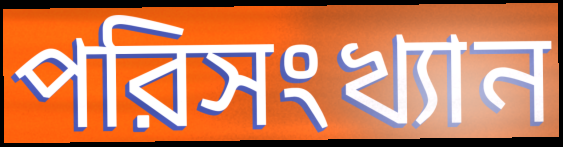
পরিসংখ্যান